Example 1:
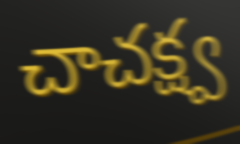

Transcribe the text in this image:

చాచక్ష్వ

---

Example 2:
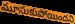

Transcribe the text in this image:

మూసుకుపోయిందని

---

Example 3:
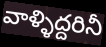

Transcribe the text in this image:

వాళ్ళిద్దరినీ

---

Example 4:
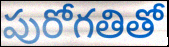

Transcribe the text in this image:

పురోగతితో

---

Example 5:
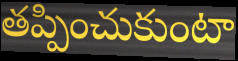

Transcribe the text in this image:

తప్పించుకుంటా